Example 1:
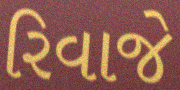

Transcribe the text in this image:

રિવાજે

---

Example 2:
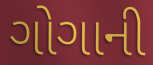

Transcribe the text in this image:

ગોગાની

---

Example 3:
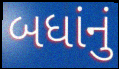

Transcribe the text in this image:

બધાંનું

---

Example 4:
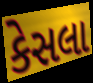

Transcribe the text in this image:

કેસલા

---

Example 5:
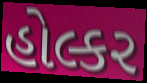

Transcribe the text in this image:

હોલ્કર